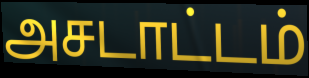
அசடாட்டம்